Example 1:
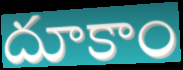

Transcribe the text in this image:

దూకాం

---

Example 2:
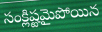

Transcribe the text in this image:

సంక్లిష్టమైపోయిన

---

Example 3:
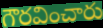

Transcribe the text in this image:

గౌరవించారు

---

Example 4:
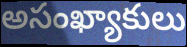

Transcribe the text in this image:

అసంఖ్యాకులు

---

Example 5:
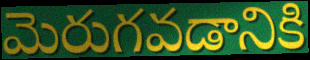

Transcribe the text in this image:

మెరుగవడానికి